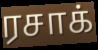
ரசாக்